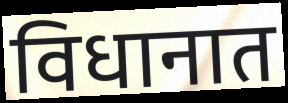
विधानात